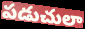
పడుచులా